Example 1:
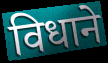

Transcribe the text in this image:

विधाने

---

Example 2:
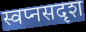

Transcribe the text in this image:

स्वप्नसदृश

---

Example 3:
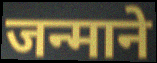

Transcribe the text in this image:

जन्माने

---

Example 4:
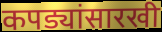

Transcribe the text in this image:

कपड्यांसारखी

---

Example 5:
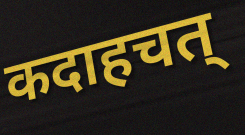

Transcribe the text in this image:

कदाहचत्